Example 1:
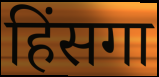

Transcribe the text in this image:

हिंसगा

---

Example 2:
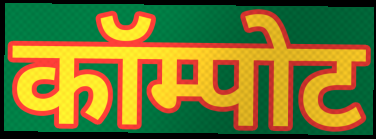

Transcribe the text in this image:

कॉम्पोट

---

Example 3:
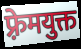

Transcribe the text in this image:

फ़्रेमयुक्त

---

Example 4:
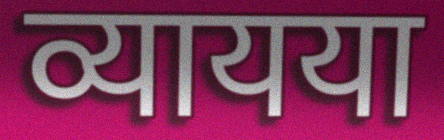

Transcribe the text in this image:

व्यायया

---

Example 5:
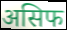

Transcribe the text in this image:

असिफ